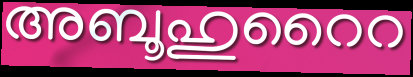
അബൂഹുറൈറ